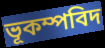
ভূকম্পবিদ